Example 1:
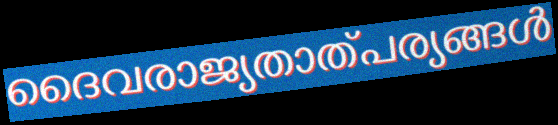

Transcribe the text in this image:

ദൈവരാജ്യതാത്പര്യങ്ങൾ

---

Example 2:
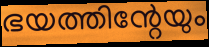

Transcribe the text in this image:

ഭയത്തിന്റേയും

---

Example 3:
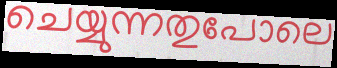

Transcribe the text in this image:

ചെയ്യുന്നതുപോലെ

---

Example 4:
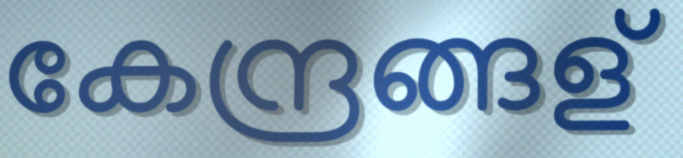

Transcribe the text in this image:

കേന്ദ്രങ്ങള്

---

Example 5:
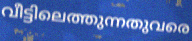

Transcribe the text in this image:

വീട്ടിലെത്തുന്നതുവരെ